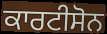
ਕਾਰਟੀਸੋਨ